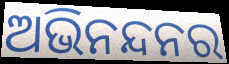
ଅଭିନନ୍ଦନର